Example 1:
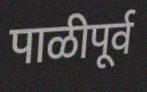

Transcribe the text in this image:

पाळीपूर्व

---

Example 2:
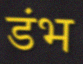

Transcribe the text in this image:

डंभ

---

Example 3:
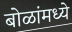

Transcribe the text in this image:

बोळांमध्ये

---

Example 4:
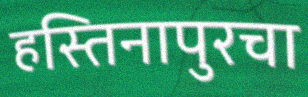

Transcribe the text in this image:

हस्तिनापुरचा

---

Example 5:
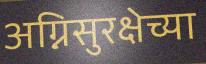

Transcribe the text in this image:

अग्निसुरक्षेच्या